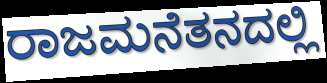
ರಾಜಮನೆತನದಲ್ಲಿ